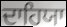
ਦਾਹਿਯਾ